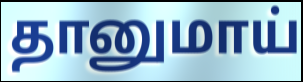
தானுமாய்